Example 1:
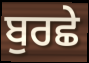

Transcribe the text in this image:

ਬੁਰਛੇ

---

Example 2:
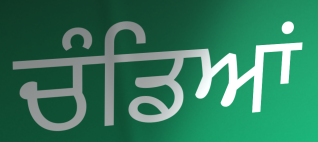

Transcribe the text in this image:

ਚੰਡਿਆਂ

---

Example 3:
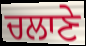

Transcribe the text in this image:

ਚਲਾਣੇ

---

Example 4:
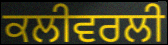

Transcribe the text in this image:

ਕਲੀਵਰਲੀ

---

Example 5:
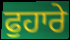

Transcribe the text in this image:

ਫੁਹਾਰੇ